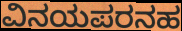
ವಿನಯಪರನಹ